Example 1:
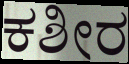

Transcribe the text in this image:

ಕಶೀರ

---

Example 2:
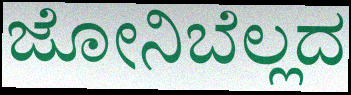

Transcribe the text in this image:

ಜೋನಿಬೆಲ್ಲದ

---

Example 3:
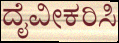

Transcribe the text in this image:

ದೈವೀಕರಿಸಿ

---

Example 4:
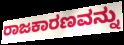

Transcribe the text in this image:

ರಾಜಕಾರಣವನ್ನು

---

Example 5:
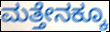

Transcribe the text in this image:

ಮತ್ತೇನಕ್ಕೂ